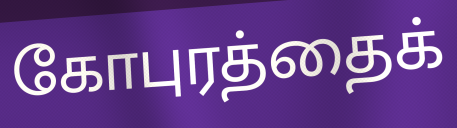
கோபுரத்தைக்